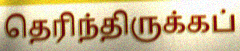
தெரிந்திருக்கப்